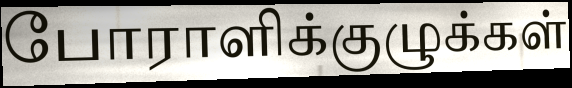
போராளிக்குழுக்கள்